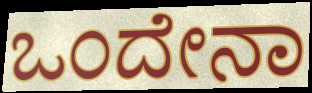
ಒಂದೇನಾ